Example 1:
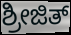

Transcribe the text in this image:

ಶ್ರೀಜಿತ್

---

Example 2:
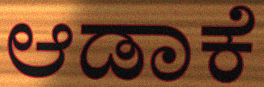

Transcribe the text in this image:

ಆಡಾಕೆ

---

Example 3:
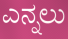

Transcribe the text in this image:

ಎನ್ನಲು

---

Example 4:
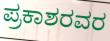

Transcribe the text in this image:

ಪ್ರಕಾಶರವರ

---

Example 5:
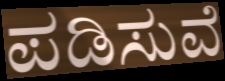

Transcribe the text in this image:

ಪಡಿಸುವೆ